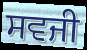
ਸਵਜੀ